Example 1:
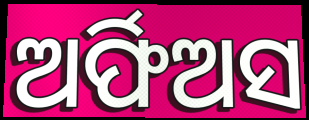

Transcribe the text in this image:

ଅର୍ଫିଅସ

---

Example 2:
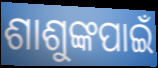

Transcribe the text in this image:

ଶାଶୁଙ୍କପାଇଁ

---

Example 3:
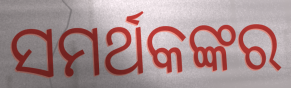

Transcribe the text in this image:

ସମର୍ଥକଙ୍କର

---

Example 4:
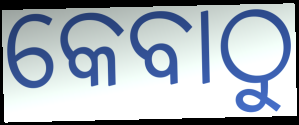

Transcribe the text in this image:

କେବାଠୁ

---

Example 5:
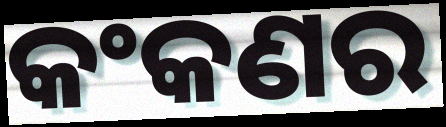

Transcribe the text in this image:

କଂକଣର